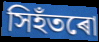
সিহঁতৰো